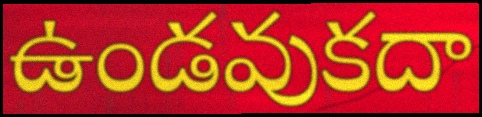
ఉండవుకదా